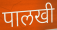
पालखी